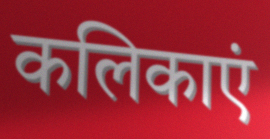
कलिकाएं